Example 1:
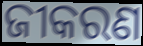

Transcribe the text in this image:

ଜୀକରଣ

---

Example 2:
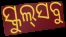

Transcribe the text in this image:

ସ୍କୁଲ୍‍ସବୁ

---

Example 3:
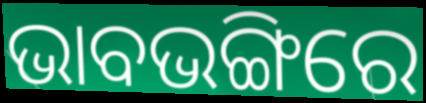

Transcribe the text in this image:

ଭାବଭଙ୍ଗିରେ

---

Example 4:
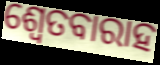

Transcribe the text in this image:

ଶ୍ଵେତବାରାହ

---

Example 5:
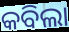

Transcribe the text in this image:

କବିଲା